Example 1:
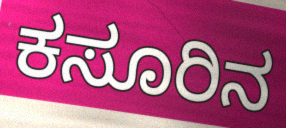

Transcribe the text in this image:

ಕಸೂರಿನ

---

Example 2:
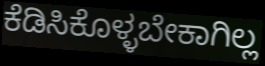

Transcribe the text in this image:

ಕೆಡಿಸಿಕೊಳ್ಳಬೇಕಾಗಿಲ್ಲ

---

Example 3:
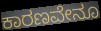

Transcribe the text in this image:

ಕಾರಣವೇನೂ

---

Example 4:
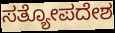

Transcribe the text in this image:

ಸತ್ಯೋಪದೇಶ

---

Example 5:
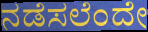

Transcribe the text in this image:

ನಡೆಸಲೆಂದೇ